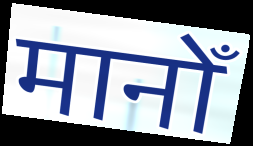
मानोँ